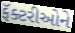
ફૅક્ટરીઓને